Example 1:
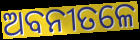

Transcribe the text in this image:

ଅବନୀତଳେ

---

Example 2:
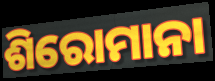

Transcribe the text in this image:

ଶିରୋମାନା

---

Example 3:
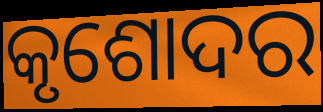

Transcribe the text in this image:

କୃଶୋଦର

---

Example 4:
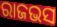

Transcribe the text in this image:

ରାଜଭସ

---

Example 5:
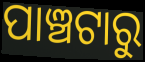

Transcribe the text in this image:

ପାଞ୍ଚଟାରୁ